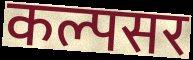
कल्पसर